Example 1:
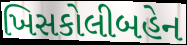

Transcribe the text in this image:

ખિસકોલીબહેન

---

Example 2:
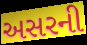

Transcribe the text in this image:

અસરની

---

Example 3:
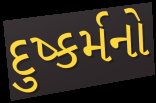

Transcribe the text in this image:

દુષ્કર્મનો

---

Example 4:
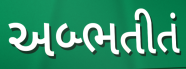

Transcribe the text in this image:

અબ્ભતીતં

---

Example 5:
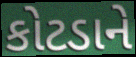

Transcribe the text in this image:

કોટડાને